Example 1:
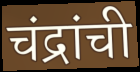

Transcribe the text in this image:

चंद्रांची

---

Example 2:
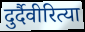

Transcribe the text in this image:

दुर्दैवीरित्या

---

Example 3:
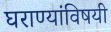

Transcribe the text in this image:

घराण्यांविषयी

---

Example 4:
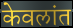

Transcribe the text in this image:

केवलांत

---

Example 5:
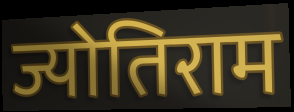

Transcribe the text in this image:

ज्योतिराम